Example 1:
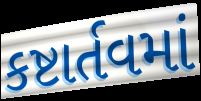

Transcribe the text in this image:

કષ્ટાર્તવમાં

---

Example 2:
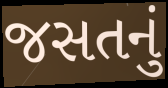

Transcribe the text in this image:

જસતનું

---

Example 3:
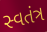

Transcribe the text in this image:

સ્વતંત્ર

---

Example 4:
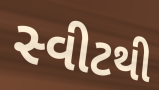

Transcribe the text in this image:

સ્વીટથી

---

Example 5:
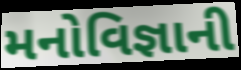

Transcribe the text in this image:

મનોવિજ્ઞાની